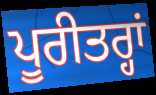
ਪੂਰੀਤਰ੍ਹਾਂ